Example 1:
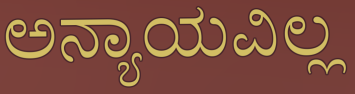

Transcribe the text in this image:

ಅನ್ಯಾಯವಿಲ್ಲ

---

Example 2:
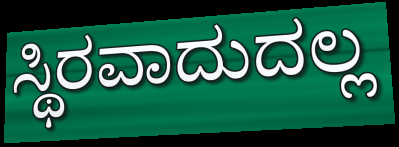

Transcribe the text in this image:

ಸ್ಥಿರವಾದುದಲ್ಲ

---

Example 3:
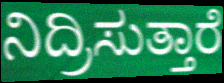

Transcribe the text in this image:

ನಿದ್ರಿಸುತ್ತಾರೆ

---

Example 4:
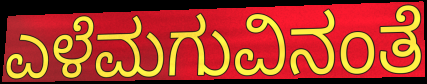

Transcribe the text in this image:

ಎಳೆಮಗುವಿನಂತೆ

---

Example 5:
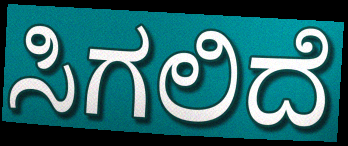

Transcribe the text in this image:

ಸಿಗಲಿದೆ